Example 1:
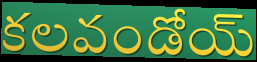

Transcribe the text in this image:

కలవండోయ్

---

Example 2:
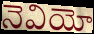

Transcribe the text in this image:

నెవియో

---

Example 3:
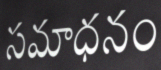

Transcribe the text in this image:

సమాధనం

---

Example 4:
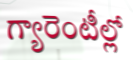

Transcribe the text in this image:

గ్యారెంటీల్లో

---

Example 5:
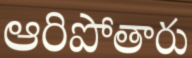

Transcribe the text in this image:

ఆరిపోతారు